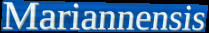
Mariannensis